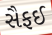
સૈફઈ